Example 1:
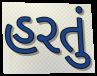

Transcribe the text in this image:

હરતું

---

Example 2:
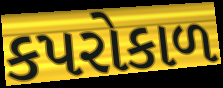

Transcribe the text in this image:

કપરોકાળ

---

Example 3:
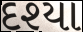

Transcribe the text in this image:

દશ્યા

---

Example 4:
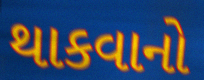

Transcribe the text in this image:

થાકવાનો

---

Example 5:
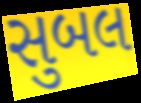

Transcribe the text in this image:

સુબલ